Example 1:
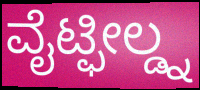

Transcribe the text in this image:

ವೈಟ್ಫೀಲ್ಡ್ನ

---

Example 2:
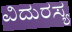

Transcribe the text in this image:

ವಿದುರಸ್ಯ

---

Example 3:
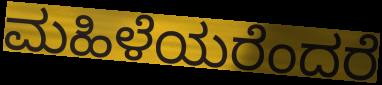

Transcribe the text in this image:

ಮಹಿಳೆಯರೆಂದರೆ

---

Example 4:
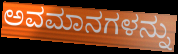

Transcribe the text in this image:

ಅವಮಾನಗಳನ್ನು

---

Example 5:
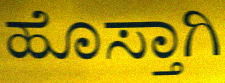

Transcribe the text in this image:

ಹೊಸ್ತಾಗಿ